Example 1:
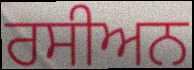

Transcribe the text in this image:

ਰਸੀਅਨ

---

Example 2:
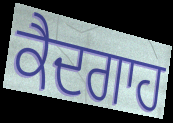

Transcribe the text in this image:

ਕੈਦਗਾਹ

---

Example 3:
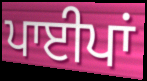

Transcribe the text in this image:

ਪਾਈਪਾਂ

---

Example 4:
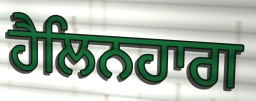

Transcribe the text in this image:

ਹੈਲਿਨਹਾਗ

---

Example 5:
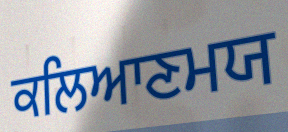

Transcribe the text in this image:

ਕਲਿਆਣਮਯ